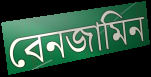
বেনজামিন